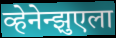
व्हेनेन्झुएला